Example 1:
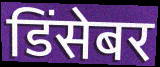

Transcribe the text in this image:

डिंसेबर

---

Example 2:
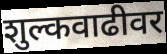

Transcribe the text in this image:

शुल्कवाढीवर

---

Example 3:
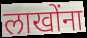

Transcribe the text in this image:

लाखोंना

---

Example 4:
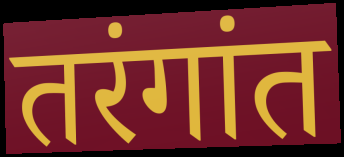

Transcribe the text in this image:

तरंगांत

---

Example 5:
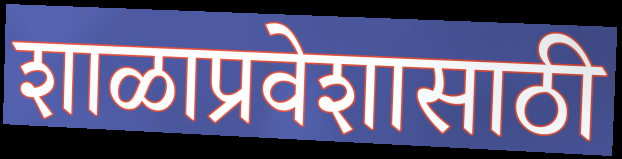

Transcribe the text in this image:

शाळाप्रवेशासाठी